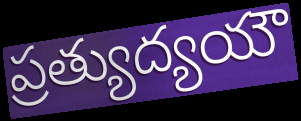
ప్రత్యుద్యయౌ